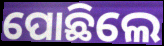
ପୋଛିଲେ